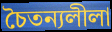
চৈতন্যলীলা